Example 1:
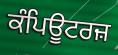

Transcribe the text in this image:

ਕੰਪਿਊਟਰਜ਼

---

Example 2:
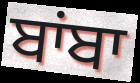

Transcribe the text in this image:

ਬਾਂਬਾ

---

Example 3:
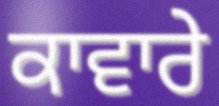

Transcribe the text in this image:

ਕਾਵਾਰੇ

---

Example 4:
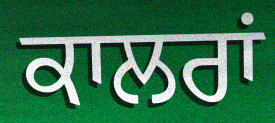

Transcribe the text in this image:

ਕਾਲਰਾਂ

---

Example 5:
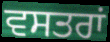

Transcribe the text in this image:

ਵਸਤਰਾਂ